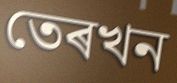
তেৰখন